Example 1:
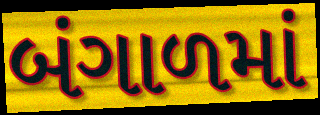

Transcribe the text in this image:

બંગાળમાં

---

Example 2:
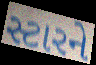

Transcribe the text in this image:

સ્ટારને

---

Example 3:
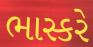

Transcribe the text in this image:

ભાસ્કરે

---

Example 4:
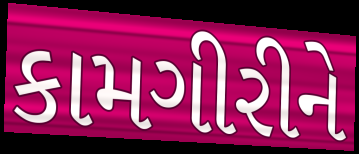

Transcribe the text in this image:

કામગીરીને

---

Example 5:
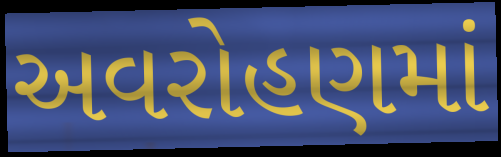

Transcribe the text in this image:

અવરોહણમાં